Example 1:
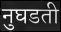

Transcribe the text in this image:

नुघडती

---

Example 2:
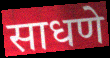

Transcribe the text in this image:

साधणे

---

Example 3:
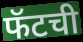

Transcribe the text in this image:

फॅटची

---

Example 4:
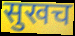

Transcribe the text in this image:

सुखच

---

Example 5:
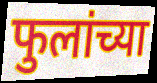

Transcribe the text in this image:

फुलांच्या